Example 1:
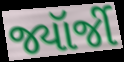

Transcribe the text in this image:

જ્યૉર્જી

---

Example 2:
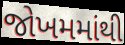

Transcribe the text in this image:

જોખમમાંથી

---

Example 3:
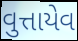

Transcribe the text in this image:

વુત્તાયેવ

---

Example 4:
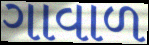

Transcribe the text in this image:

ગાવાળ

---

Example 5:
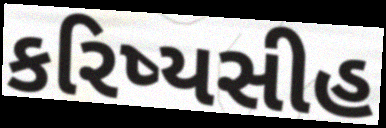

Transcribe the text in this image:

કરિષ્યસીહ